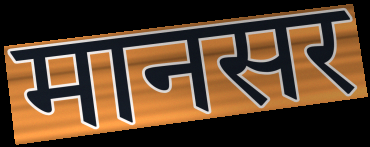
मानसर